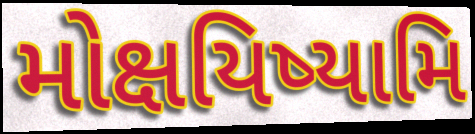
મોક્ષયિષ્યામિ